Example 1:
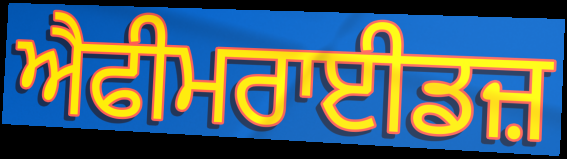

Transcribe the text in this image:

ਐਫੀਮਰਾਈਡਜ਼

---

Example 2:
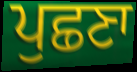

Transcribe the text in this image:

ਪੁਛਣਾ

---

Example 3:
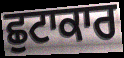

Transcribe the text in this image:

ਛੁਟਾਕਾਰ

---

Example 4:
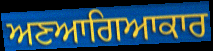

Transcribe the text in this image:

ਅਣਆਗਿਆਕਾਰ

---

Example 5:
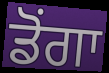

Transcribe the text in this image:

ਡੋਂਗਾ